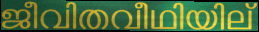
ജീവിതവീഥിയില്